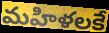
మహిళలకే